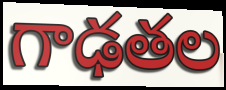
గాఢతల